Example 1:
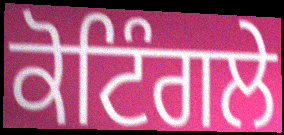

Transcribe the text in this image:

ਕੋਟਿੰਗਲੇ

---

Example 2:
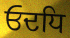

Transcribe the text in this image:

ਓਦਧਿ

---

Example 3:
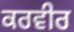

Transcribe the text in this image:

ਕਰਵੀਰ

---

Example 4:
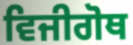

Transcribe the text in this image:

ਵਿਜੀਗੋਥ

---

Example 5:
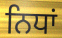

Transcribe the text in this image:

ਨਿਧਾਂ